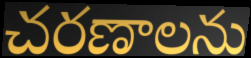
చరణాలను